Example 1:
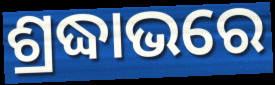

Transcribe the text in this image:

ଶ୍ରଦ୍ଧାଭରେ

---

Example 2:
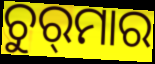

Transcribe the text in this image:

ଚୁର୍‍ମାର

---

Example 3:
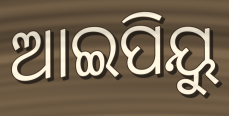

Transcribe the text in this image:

ଆଇପିୟୁ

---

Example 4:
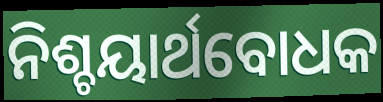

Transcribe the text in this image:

ନିଶ୍ଚୟାର୍ଥବୋଧକ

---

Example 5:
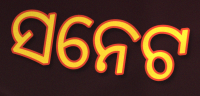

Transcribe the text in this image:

ସନେଟ